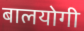
बालयोगी